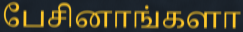
பேசினாங்களா